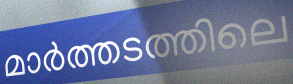
മാർത്തടത്തിലെ